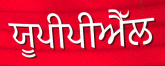
ਯੂਪੀਪੀਐੱਲ